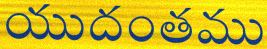
యుదంతము